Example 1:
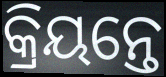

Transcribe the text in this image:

କ୍ରିୟନ୍ତେ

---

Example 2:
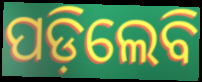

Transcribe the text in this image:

ପଡ଼ିଲେବି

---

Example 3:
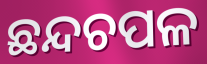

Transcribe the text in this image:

ଛନ୍ଦଚପଳ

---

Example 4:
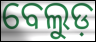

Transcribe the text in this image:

ବେଲୁଡ଼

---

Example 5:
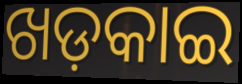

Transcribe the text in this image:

ଖଡ଼କାଇ